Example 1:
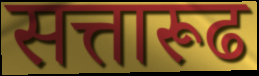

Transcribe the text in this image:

सत्तारूढ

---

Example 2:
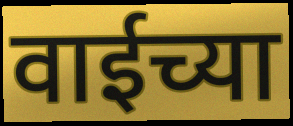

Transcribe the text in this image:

वाईच्या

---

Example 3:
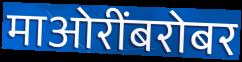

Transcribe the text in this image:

माओरींबरोबर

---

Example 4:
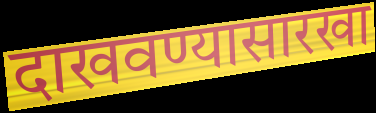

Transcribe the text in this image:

दाखवण्यासारखा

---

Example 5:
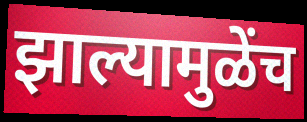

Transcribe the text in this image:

झाल्यामुळेंच